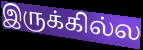
இருக்கில்ல